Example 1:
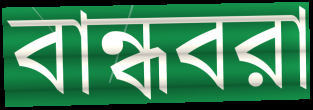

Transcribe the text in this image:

বান্ধবরা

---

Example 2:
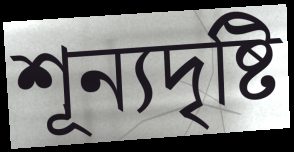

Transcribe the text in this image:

শূন্যদৃষ্টি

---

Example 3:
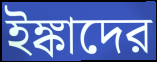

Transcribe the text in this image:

ইঙ্কাদের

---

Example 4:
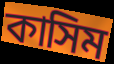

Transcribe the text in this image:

কাসিম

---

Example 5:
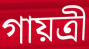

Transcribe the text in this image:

গায়ত্রী